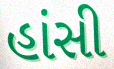
હાંસી